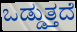
ಒಡ್ಡುತ್ತದೆ